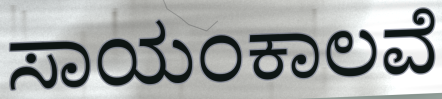
ಸಾಯಂಕಾಲವೆ